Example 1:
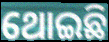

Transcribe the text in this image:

ଥୋଇଛି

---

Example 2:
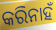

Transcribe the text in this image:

କରିନାହଁ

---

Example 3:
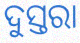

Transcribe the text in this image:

ଦୁସ୍ତରା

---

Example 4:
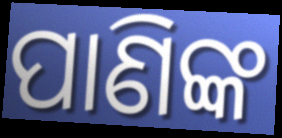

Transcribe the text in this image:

ପାଣିଙ୍କ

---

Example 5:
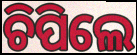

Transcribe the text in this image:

ଚିପିଲେ